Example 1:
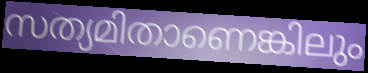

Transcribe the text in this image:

സത്യമിതാണെങ്കിലും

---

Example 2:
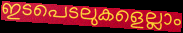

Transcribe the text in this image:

ഇടപെടലുകളെല്ലാം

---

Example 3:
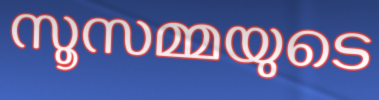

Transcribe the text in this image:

സൂസമ്മയുടെ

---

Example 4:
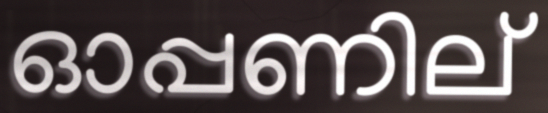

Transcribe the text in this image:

ഓപ്പണില്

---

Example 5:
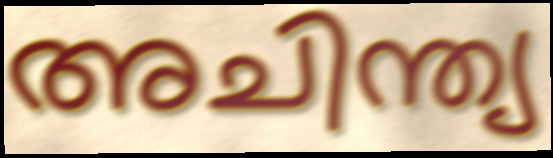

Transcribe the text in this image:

അചിന്ത്യ